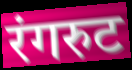
रंगरुट